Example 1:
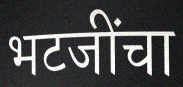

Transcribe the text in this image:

भटजींचा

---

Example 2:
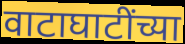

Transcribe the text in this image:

वाटाघाटींच्या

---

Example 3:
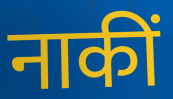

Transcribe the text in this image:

नाकीं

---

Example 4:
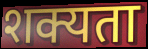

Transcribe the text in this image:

शक्यता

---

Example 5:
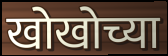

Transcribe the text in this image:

खोखोच्या